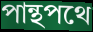
পান্থপথে